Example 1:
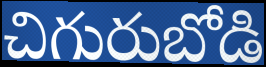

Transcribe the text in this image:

చిగురుబోడి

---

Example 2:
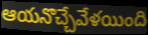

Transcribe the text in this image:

ఆయనొచ్చేవేళయింది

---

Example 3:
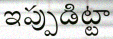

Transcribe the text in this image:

ఇప్పుడిట్టా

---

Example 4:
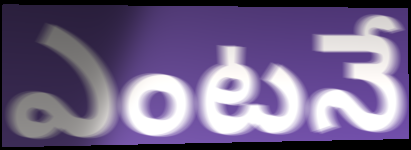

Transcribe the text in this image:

ఎంటనే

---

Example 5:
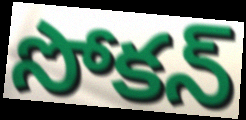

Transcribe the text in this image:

సోకన్